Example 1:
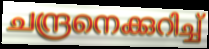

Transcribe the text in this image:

ചന്ദ്രനെക്കുറിച്ച്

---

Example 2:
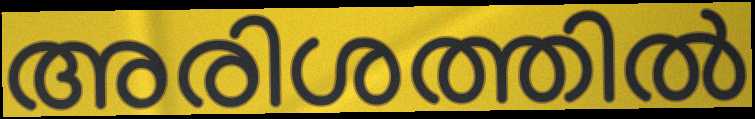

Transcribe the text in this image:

അരിശത്തിൽ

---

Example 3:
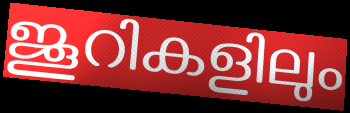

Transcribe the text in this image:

ജൂറികളിലും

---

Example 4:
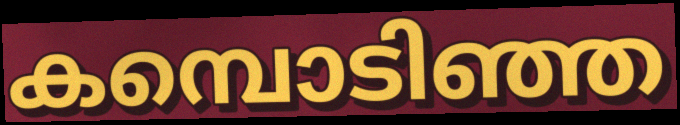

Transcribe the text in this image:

കമ്പൊടിഞ്ഞ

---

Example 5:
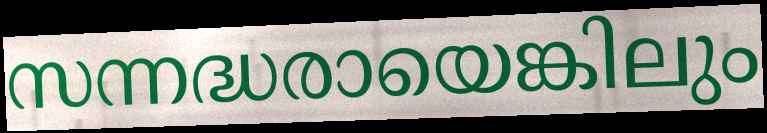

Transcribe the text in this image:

സന്നദ്ധരായെങ്കിലും